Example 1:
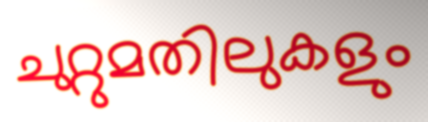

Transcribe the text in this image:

ചുറ്റുമതിലുകളും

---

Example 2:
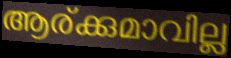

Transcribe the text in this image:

ആര്ക്കുമാവില്ല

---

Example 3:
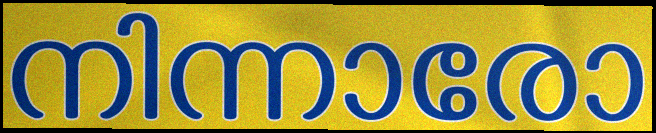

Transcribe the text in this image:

നിന്നാരോ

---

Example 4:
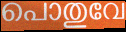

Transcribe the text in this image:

പൊതുവേ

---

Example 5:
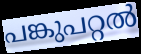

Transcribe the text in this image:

പങ്കുപറ്റൽ